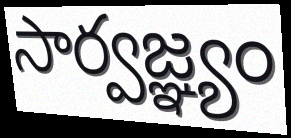
సార్వజ్ఞ్యం